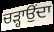
ਚੜ੍ਹਾਉਂਦਾ